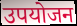
उपयोजन